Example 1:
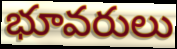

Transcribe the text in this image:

భూవరులు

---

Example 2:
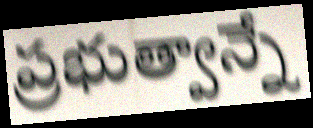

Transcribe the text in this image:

ప్రభుత్వాన్నే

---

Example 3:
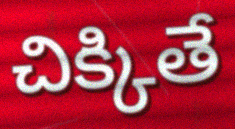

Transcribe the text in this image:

చిక్కితే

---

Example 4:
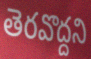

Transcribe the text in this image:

తెరవొద్దని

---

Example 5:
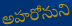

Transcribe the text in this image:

అహరోనుని